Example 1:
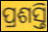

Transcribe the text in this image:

ପ୍ରଶସ୍ତି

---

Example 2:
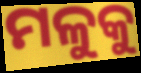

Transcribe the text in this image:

ମଳୁକୁ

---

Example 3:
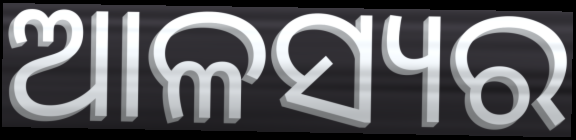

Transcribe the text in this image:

ଆଳସ୍ୟର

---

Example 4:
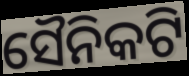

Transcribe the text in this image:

ସୈନିକଟି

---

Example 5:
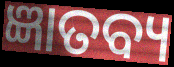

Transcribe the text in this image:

ଜ୍ଞାତବ୍ୟ